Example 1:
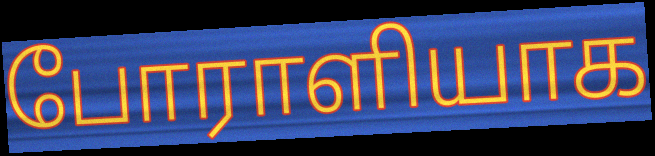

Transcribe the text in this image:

போராளியாக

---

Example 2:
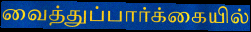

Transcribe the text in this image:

வைத்துப்பார்க்கையில்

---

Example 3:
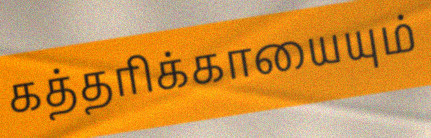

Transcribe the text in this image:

கத்தரிக்காயையும்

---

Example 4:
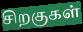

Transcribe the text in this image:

சிறகுகள்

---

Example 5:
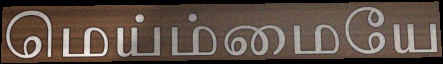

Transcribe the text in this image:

மெய்ம்மையே